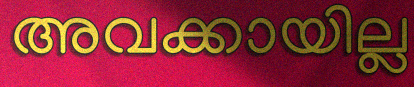
അവക്കായില്ല